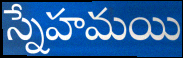
స్నేహమయి